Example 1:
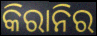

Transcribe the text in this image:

କିରାନିର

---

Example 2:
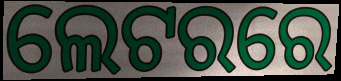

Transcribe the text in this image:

ଲେଟରରେ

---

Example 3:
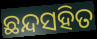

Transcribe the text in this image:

ଛନ୍ଦସହିତ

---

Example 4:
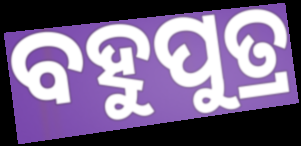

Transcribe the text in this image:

ବହୁପୁତ୍ର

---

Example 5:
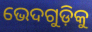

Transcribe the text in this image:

ଭେଦଗୁଡ଼ିକୁ